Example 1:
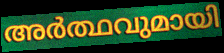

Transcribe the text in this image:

അർത്ഥവുമായി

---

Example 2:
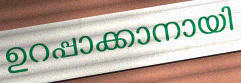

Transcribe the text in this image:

ഉറപ്പാക്കാനായി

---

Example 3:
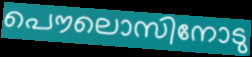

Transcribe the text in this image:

പൌലൊസിനോടു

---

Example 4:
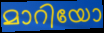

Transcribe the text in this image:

മാറിയോ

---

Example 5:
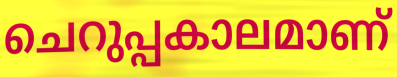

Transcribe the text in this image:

ചെറുപ്പകാലമാണ്